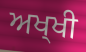
ਅਖ੍ਖੀ